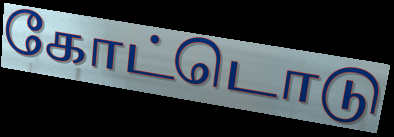
கோட்டொடு